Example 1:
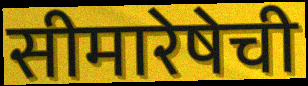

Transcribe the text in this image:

सीमारेषेची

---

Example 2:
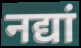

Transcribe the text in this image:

नद्यां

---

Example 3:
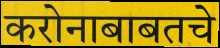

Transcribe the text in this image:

करोनाबाबतचे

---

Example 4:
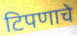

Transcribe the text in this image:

टिपणाचे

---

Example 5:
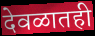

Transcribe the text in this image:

देवळातही